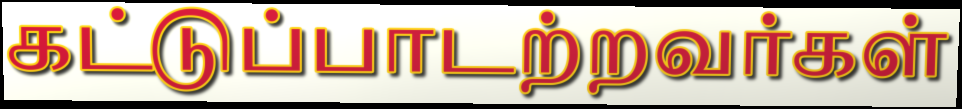
கட்டுப்பாடற்றவர்கள்